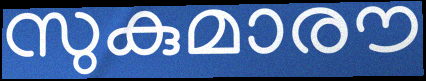
സുകുമാരൗ